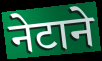
नेटाने